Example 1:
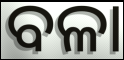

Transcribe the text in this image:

ବଳା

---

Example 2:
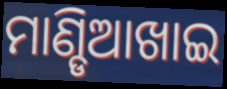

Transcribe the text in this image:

ମାଣ୍ଡିଆଖାଇ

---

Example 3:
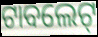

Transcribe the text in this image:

ଟାବଲେଟ୍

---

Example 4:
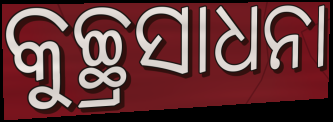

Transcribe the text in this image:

କୁଚ୍ଛ୍ରସାଧନା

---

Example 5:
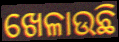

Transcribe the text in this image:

ଖେଳାଉଛି